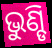
ଭୁଣ୍ଡି